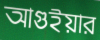
আগুইয়ার